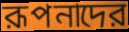
রূপনাদের